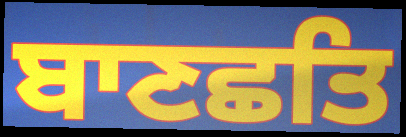
ਬਾਣਛਤਿ